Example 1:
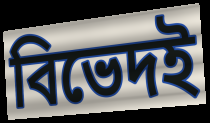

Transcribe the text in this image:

বিভেদই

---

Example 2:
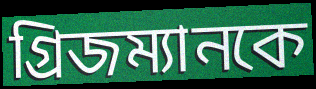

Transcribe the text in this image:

গ্রিজম্যানকে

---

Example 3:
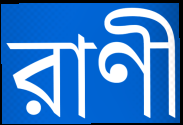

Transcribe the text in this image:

রাণী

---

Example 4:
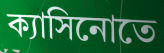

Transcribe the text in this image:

ক্যাসিনোতে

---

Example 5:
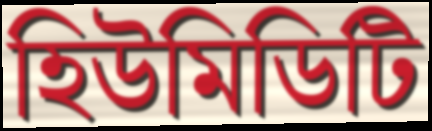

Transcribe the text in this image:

হিউমিডিটি